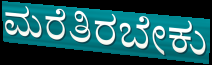
ಮರೆತಿರಬೇಕು